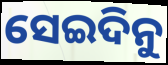
ସେଇଦିନୁ